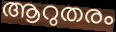
ആറുതരം